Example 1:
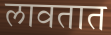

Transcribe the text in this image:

लावतात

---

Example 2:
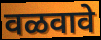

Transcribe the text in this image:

वळवावे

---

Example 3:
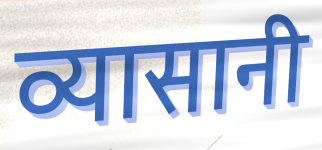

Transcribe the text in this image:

व्यासानी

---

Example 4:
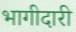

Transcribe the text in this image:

भागीदारी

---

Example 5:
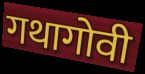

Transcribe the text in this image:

गथागोवी